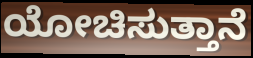
ಯೋಚಿಸುತ್ತಾನೆ